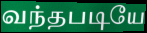
வந்தபடியே